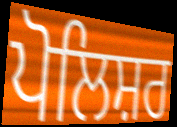
ਪੋਲਿਸ਼ਰ